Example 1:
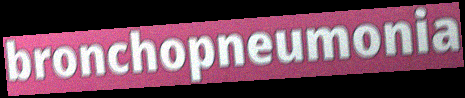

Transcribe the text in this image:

bronchopneumonia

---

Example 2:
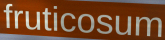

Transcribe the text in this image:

fruticosum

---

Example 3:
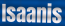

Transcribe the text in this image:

Isaanis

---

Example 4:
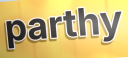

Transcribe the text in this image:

parthy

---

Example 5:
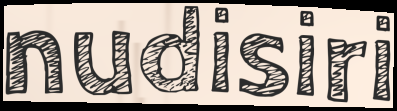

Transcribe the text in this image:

nudisiri